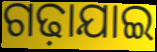
ଗଢ଼ାଯାଇ